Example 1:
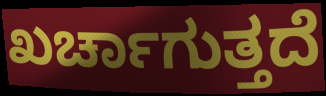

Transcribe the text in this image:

ಖರ್ಚಾಗುತ್ತದೆ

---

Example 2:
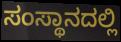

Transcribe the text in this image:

ಸಂಸ್ಥಾನದಲ್ಲಿ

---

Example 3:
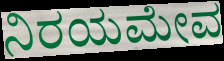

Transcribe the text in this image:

ನಿರಯಮೇವ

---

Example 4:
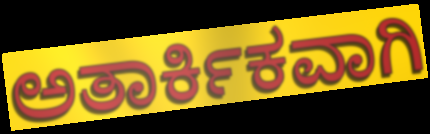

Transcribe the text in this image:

ಅತಾರ್ಕಿಕವಾಗಿ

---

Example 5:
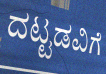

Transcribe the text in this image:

ದಟ್ಟಡವಿಗೆ